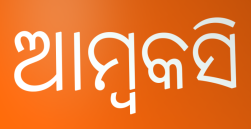
ଆମ୍ବକସି